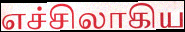
எச்சிலாகிய